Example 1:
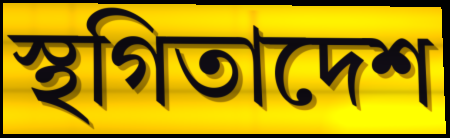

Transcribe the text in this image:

স্থগিতাদেশ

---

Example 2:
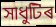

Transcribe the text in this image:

সাধুটিৰ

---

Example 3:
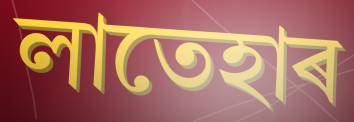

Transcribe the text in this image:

লাতেহাৰ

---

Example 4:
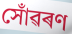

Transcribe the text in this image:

সোঁৱৰণ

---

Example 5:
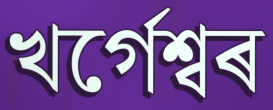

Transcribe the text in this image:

খৰ্গেশ্বৰ